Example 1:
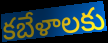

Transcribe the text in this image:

కబేళాలకు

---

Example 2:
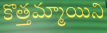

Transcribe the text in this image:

కొత్తమ్మాయిని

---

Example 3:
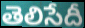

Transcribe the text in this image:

తెలిసేదీ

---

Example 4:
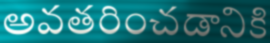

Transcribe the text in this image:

అవతరించడానికి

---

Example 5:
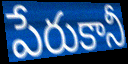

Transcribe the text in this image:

పేరుకానీ